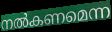
നൽകണമെന്ന